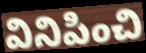
వినిపించి